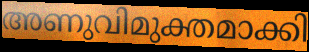
അണുവിമുക്തമാക്കി